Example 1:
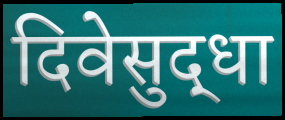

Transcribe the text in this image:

दिवेसुद्धा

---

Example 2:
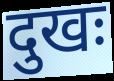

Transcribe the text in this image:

दुखः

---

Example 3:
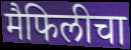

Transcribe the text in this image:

मैफिलीचा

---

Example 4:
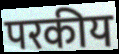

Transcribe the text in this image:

परकीय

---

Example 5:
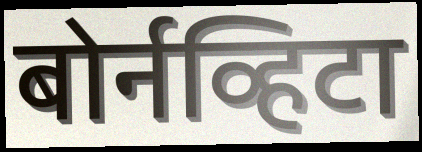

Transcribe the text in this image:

बोर्नव्हिटा